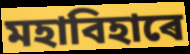
মহাবিহাৰে